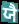
ਯੈ